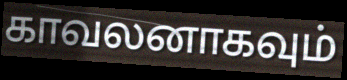
காவலனாகவும்